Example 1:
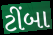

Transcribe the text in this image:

ટીંબા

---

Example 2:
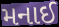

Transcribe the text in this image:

મનાઈ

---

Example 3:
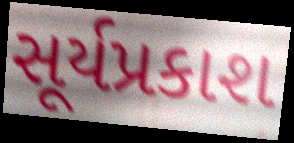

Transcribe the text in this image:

સૂર્યપ્રકાશ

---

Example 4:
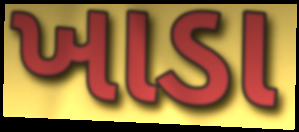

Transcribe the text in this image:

ખાડા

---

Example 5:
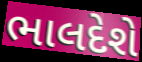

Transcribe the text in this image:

ભાલદેશે